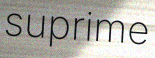
suprime